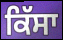
ਕਿੱਸਾ